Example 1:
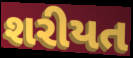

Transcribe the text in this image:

શરીયત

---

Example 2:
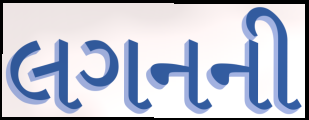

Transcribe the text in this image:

લગનની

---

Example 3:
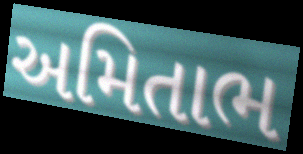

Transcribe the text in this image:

અમિતાભ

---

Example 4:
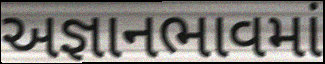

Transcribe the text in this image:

અજ્ઞાનભાવમાં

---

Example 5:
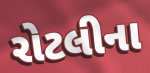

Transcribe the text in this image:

રોટલીના